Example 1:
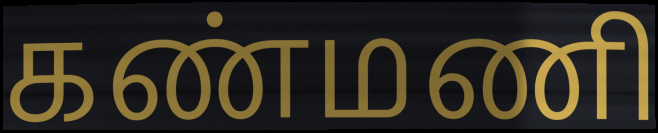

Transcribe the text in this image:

கண்மணி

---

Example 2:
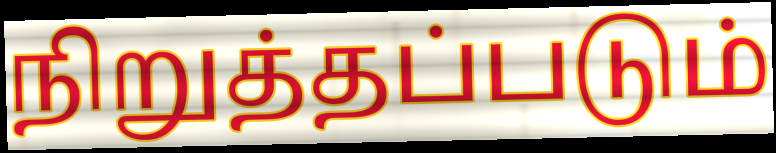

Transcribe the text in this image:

நிறுத்தப்படும்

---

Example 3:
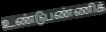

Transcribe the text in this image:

உண்டுபண்ணிக்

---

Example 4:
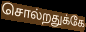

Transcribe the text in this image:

சொல்றதுக்கே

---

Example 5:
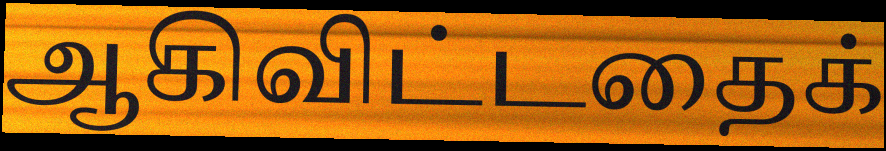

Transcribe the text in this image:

ஆகிவிட்டதைக்